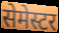
सेमेस्टर